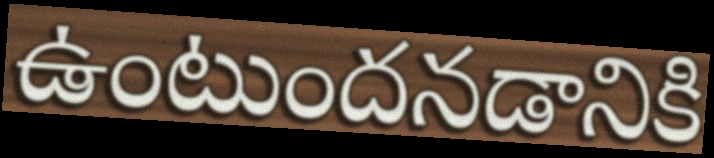
ఉంటుందనడానికి